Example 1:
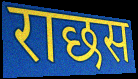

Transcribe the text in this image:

राछस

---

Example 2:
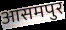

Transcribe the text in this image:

आसमपुर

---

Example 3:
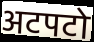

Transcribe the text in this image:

अटपटो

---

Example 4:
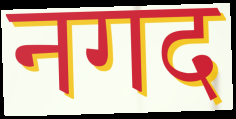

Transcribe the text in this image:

नगद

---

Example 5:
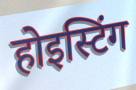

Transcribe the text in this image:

होइस्टिंग